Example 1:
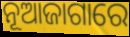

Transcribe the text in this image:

ନୂଆଜାଗାରେ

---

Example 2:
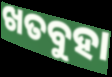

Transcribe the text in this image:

ଖତବୁହା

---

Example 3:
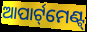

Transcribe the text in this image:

ଆପାର୍ଟ୍‌ମେଣ୍ଟ୍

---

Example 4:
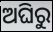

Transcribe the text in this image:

ଅଘିରୁ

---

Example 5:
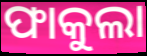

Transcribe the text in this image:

ଫାକୁଲା